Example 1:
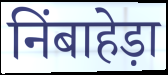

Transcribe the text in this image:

निंबाहेड़ा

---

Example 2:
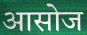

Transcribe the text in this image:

आसोज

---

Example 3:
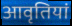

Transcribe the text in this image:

आवृतियां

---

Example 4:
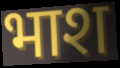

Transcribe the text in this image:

भाश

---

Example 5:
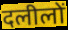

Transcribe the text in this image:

दलीलों